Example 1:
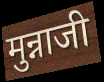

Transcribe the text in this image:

मुन्नाजी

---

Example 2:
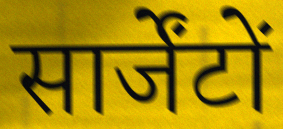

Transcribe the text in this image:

सार्जेंटों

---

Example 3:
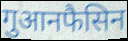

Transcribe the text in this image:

गुआनफैसिन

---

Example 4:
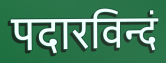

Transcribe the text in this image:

पदारविन्दं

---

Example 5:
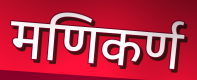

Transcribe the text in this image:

मणिकर्ण